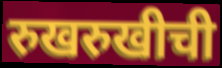
रुखरुखीची